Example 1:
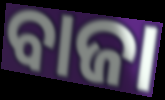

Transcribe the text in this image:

ବାଜା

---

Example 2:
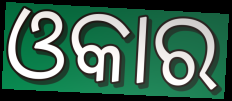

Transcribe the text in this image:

ଓକାର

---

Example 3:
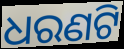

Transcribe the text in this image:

ଧରଣଟି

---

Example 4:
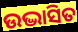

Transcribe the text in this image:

ଉଦ୍ଭାସିତ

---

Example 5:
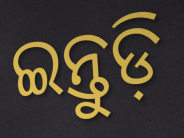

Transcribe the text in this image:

ଇନ୍ତୁଡ଼ି